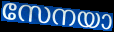
സേനയാ